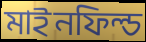
মাইনফিল্ড